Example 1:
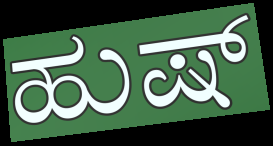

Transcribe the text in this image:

ಹುಷ್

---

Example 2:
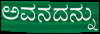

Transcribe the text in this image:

ಅವನದನ್ನು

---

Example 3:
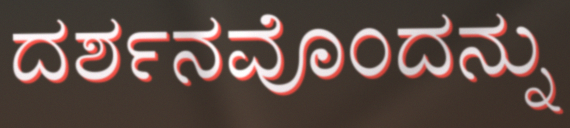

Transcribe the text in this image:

ದರ್ಶನವೊಂದನ್ನು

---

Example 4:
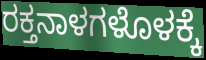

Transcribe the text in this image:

ರಕ್ತನಾಳಗಳೊಳಕ್ಕೆ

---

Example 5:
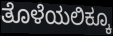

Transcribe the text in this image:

ತೊಳೆಯಲಿಕ್ಕೂ